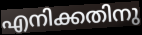
എനിക്കതിനു